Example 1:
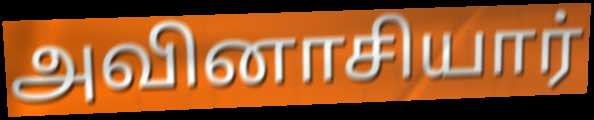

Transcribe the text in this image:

அவினாசியார்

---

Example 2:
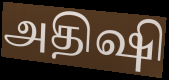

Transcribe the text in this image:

அதிஷி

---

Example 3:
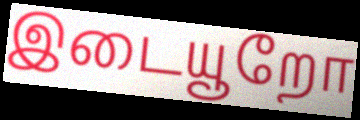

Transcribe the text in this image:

இடையூறோ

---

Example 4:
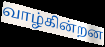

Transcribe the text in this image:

வாழ்கின்றன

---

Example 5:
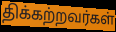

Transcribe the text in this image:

திக்கற்றவர்கள்